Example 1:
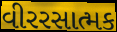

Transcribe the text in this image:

વીરરસાત્મક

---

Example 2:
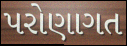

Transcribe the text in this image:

પરોણાગત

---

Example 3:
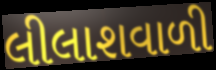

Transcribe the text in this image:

લીલાશવાળી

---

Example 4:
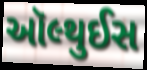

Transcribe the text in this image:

ઑલ્થુઈસ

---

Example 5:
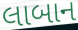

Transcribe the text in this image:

લાબાન